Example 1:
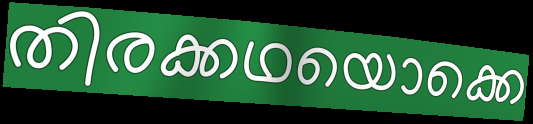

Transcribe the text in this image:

തിരക്കഥയൊക്കെ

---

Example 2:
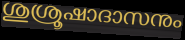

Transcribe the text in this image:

ശുശ്രൂഷാദാസനും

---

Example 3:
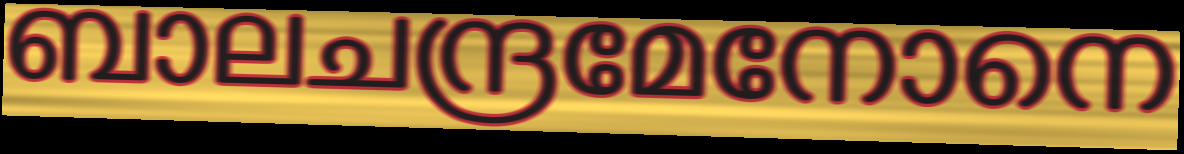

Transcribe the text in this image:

ബാലചന്ദ്രമേനോനെ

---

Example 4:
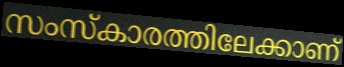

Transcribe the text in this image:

സംസ്കാരത്തിലേക്കാണ്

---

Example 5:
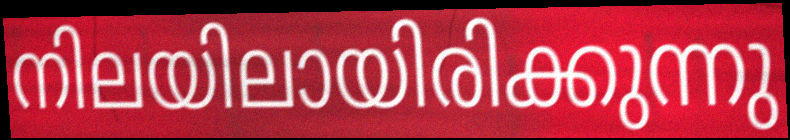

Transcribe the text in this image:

നിലയിലായിരിക്കുന്നു